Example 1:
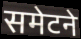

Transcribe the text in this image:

समेटने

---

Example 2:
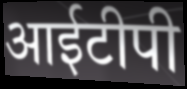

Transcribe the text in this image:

आईटीपी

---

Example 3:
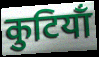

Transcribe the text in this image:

कुटियाँ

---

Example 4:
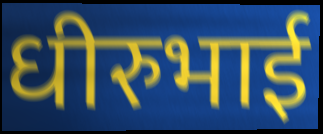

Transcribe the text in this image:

धीरुभाई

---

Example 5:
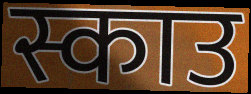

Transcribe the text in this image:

स्काउ